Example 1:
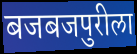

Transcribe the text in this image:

बजबजपुरीला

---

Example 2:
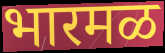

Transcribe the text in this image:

भारमळ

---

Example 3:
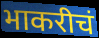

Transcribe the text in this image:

भाकरीचं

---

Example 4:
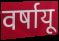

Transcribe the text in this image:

वर्षायू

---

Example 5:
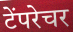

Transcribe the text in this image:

टेंपरेचर